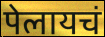
पेलायचं